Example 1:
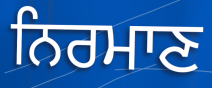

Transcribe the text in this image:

ਨਿਰਮਾਣ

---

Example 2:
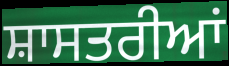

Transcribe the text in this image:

ਸ਼ਾਸਤਰੀਆਂ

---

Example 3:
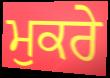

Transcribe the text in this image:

ਮੁਕਰੇ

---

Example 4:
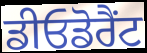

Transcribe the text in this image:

ਡੀਓਡੋਰੈਂਟ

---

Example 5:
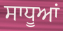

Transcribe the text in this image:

ਸਾਧੂਆਂ